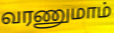
வரணுமாம்